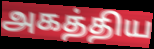
அகத்திய